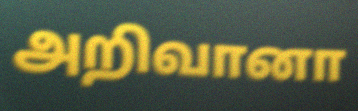
அறிவானா